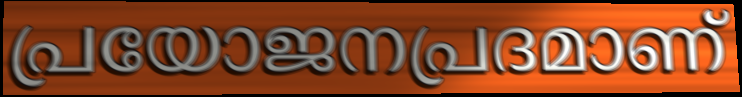
പ്രയോജനപ്രദമാണ്